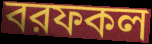
বরফকল